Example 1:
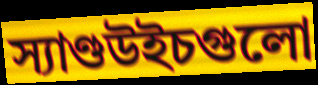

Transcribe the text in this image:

স্যাণ্ডউইচগুলো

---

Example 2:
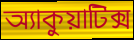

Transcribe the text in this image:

অ্যাকুয়াটিক্স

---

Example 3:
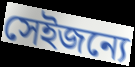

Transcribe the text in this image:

সেইজন্যে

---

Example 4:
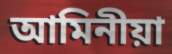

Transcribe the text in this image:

আমিনীয়া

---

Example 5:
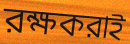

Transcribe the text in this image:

রক্ষকরাই